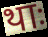
थाः